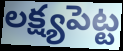
లక్ష్యపెట్ట